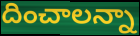
దించాలన్నా